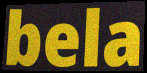
bela